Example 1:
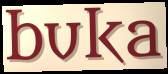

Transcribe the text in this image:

buka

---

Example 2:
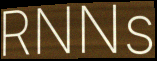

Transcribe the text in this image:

RNNs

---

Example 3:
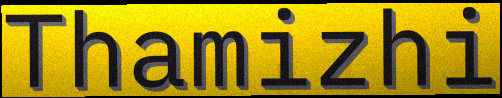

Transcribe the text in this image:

Thamizhi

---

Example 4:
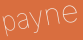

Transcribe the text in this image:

payne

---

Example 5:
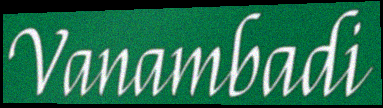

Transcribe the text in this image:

Vanambadi